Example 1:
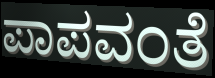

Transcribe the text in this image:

ಪಾಪವಂತೆ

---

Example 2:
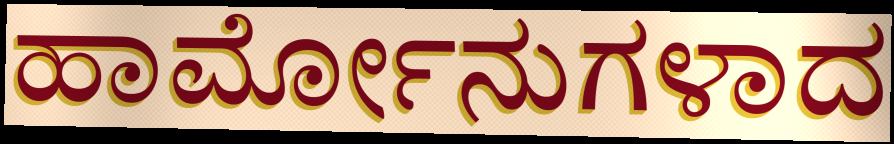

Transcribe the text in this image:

ಹಾರ್ಮೋನುಗಳಾದ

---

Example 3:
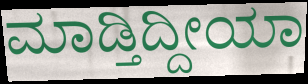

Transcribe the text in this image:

ಮಾಡ್ತಿದ್ದೀಯಾ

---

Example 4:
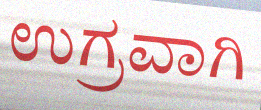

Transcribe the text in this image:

ಉಗ್ರವಾಗಿ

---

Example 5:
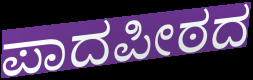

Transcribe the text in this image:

ಪಾದಪೀಠದ